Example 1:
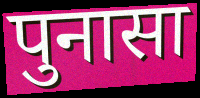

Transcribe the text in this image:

पुनासा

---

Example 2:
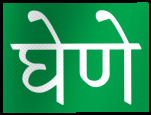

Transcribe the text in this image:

घेणे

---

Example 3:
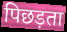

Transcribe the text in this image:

पिछड़ता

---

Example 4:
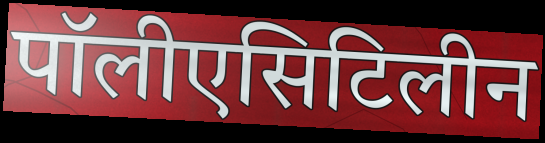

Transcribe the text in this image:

पॉलीएसिटिलीन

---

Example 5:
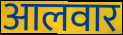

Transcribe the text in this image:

आलवार